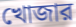
খোজার